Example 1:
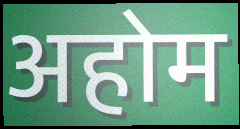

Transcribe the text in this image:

अहोम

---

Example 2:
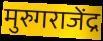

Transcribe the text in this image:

मुरुगराजेंद्र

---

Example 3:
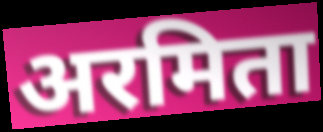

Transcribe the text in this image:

अरमिता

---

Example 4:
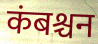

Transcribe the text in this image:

कंबश्चन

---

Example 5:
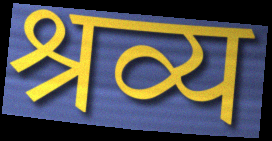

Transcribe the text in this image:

श्रव्य